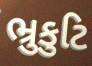
ભ્રુકુટિ